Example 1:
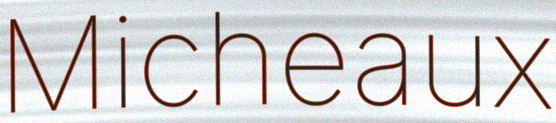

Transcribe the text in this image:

Micheaux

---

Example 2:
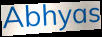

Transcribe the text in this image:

Abhyas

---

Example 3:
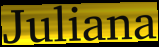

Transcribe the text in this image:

Juliana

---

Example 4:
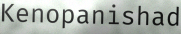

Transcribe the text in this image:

Kenopanishad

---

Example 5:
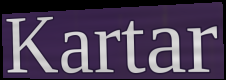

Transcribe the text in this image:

Kartar